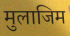
मुलाजिम